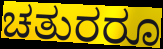
ಚತುರರೂ